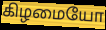
கிழமையோ